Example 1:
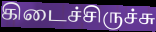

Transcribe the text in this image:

கிடைச்சிருச்சு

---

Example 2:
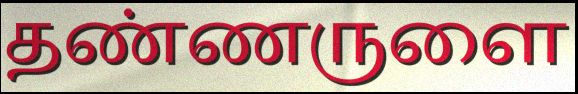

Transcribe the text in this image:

தண்ணருளை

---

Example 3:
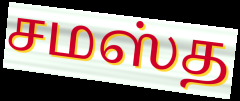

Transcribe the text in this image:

சமஸ்த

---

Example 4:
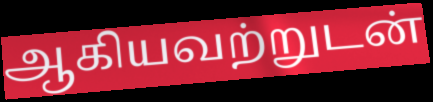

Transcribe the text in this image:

ஆகியவற்றுடன்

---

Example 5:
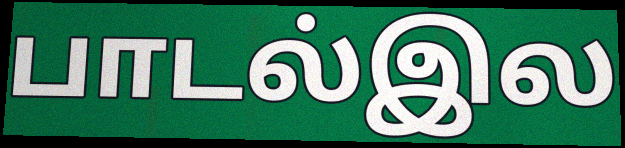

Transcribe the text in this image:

பாடல்இல